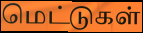
மெட்டுகள்